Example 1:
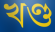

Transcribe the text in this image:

খণ্ড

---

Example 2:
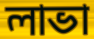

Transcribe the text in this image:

লাভা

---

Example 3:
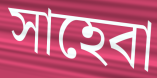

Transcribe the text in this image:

সাহেবা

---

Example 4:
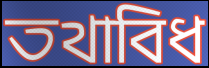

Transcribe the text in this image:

তথাবিধ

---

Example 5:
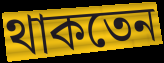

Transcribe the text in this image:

থাকতেন